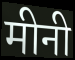
मीनी